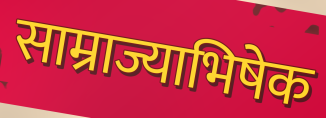
साम्राज्याभिषेक